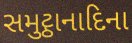
સમુટ્ઠાનાદિના